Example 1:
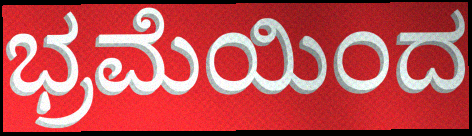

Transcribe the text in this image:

ಭ್ರಮೆಯಿಂದ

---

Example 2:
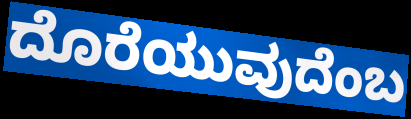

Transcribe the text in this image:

ದೊರೆಯುವುದೆಂಬ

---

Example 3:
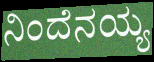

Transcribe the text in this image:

ನಿಂದೆನಯ್ಯ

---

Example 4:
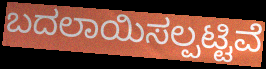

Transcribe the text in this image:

ಬದಲಾಯಿಸಲ್ಪಟ್ಟಿವೆ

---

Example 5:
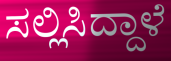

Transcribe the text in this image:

ಸಲ್ಲಿಸಿದ್ದಾಳೆ